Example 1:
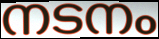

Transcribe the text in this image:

നടനം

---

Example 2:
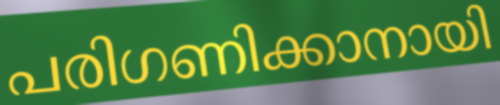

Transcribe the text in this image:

പരിഗണിക്കാനായി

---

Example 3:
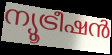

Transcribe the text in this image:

ന്യൂട്രീഷൻ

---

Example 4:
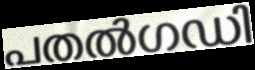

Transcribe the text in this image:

പതൽഗഡി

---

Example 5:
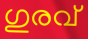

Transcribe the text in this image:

ഗുരവ്